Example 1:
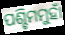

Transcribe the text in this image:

ପଶ୍ଚିମମୁହାଁ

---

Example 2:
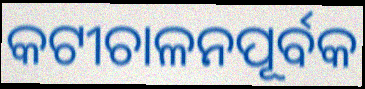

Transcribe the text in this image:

କଟୀଚାଳନପୂର୍ବକ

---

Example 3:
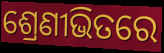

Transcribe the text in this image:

ଶ୍ରେଣୀଭିତରେ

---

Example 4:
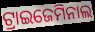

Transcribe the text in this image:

ଟ୍ରାଇଜେମିନାଲ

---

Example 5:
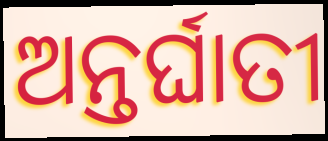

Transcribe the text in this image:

ଅନ୍ତର୍ଘାତୀ